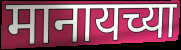
मानायच्या